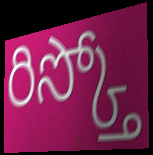
రిస్క్తో